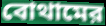
বোথামের